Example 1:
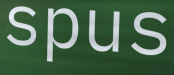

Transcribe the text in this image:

spus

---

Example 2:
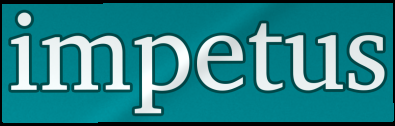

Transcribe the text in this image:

impetus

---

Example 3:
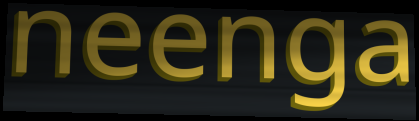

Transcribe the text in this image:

neenga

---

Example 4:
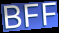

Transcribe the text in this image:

BFF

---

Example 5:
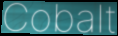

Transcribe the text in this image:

Cobalt